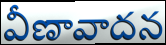
వీణావాదన